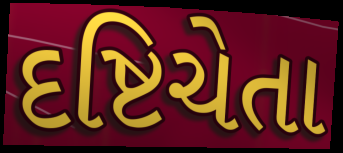
દષ્ટિચેતા